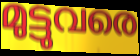
മുട്ടുവരെ